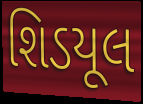
શિડયૂલ